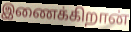
இணைக்கிறான்